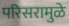
परिसरामुळे